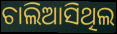
ଚାଲିଆସିଥିଲ